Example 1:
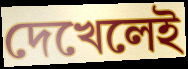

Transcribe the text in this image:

দেখেলেই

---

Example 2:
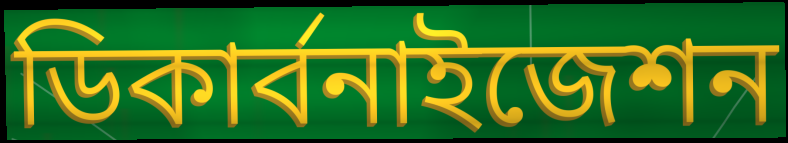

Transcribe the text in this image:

ডিকার্বনাইজেশন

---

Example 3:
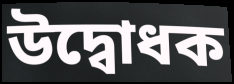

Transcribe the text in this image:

উদ্বোধক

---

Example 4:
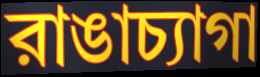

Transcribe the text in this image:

রাঙাচ্যাগা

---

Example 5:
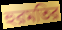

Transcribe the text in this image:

হুরমতির